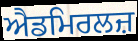
ਐਡਮਿਰਲਜ਼